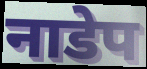
नाडेप